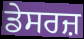
ਡੇਸਰਜ਼